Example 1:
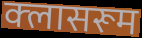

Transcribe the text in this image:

क्‍लासरूम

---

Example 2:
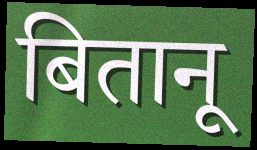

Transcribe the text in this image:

बितानू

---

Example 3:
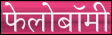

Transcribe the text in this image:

फेलोबॉमी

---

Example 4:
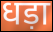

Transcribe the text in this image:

धड़ा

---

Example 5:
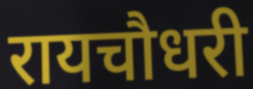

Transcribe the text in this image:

रायचौधरी